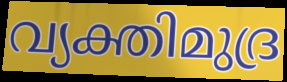
വ്യക്തിമുദ്ര